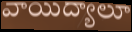
వాయిద్యాలూ